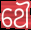
ଥୈ